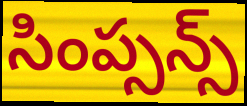
సింప్సన్స్